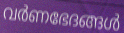
വർണഭേദങ്ങൾ